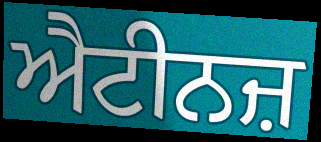
ਐਟੀਨਜ਼